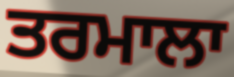
ਤਰਮਾਲਾ